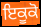
ਇਕੂਕੋ